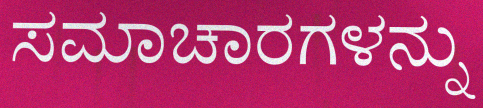
ಸಮಾಚಾರಗಳನ್ನು